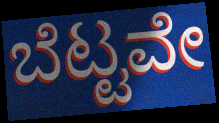
ಬೆಟ್ಟವೇ